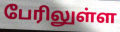
பேரிலுள்ள